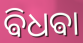
ଵିଧଵା